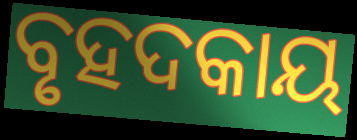
ବୃହଦକାୟ